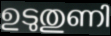
ഉടുതുണി